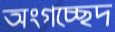
অংগচ্ছেদ